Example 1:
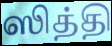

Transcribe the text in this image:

ஸித்தி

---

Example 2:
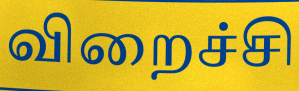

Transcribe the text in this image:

விறைச்சி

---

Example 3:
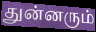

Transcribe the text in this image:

துன்னரும்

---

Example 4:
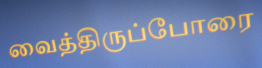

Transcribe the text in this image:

வைத்திருப்போரை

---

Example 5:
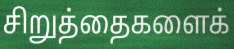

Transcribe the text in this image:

சிறுத்தைகளைக்